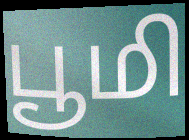
பூமி